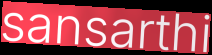
sansarthi